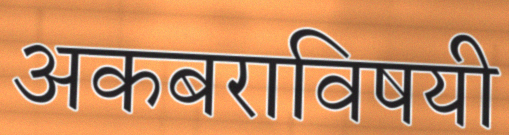
अकबराविषयी